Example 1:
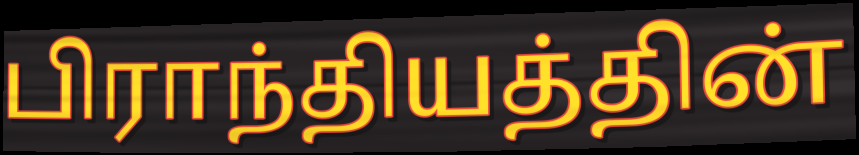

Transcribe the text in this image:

பிராந்தியத்தின்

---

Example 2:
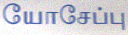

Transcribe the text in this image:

யோசேப்பு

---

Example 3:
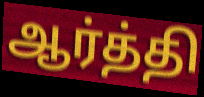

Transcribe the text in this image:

ஆர்த்தி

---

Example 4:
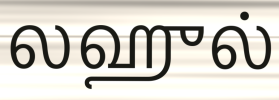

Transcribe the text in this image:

லஹுல்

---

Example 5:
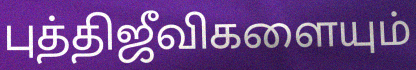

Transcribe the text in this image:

புத்திஜீவிகளையும்